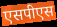
एसपीएस